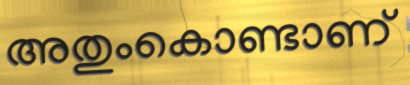
അതുംകൊണ്ടാണ്